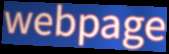
webpage